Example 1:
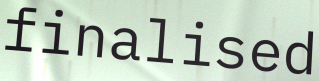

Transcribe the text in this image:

finalised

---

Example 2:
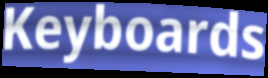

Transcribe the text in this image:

Keyboards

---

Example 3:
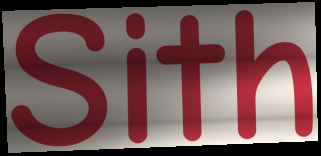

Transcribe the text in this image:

Sith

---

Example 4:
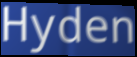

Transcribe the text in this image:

Hyden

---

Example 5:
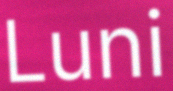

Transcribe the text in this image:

Luni